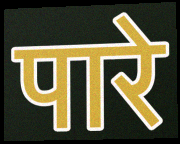
पारे